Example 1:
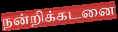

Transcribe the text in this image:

நன்றிக்கடனை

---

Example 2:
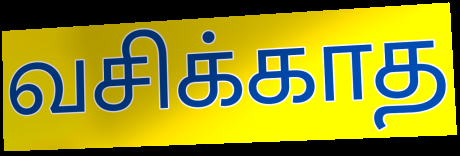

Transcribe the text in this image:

வசிக்காத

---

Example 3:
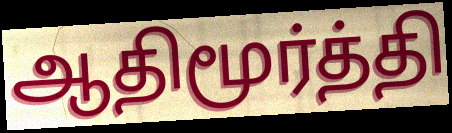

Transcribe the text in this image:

ஆதிமூர்த்தி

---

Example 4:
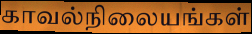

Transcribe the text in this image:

காவல்நிலையங்கள்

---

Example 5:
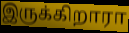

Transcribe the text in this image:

இருக்கிறாரா